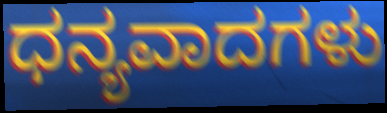
ಧನ್ಯವಾದಗಳು